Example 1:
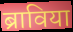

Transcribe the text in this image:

ब्राविया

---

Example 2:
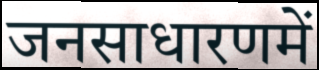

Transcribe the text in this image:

जनसाधारणमें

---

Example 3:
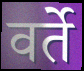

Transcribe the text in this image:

वर्ते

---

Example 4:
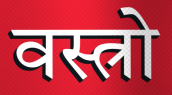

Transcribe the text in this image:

वस्त्रो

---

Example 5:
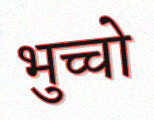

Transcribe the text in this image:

भुच्चो